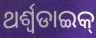
ଥର୍ଶ୍ଵଡାଇକ୍